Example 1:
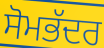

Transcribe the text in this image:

ਸੋਮਭੱਦਰ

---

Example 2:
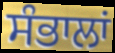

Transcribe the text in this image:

ਸੰਭਾਲਾਂ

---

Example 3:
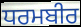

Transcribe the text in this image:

ਧਰਮਬੀਰ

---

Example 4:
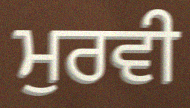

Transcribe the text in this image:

ਮੁਰਵੀ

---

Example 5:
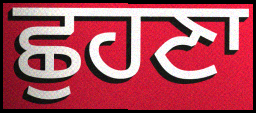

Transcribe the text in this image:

ਛੁਹਣਾ